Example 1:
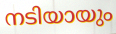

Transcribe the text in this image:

നടിയായും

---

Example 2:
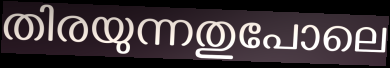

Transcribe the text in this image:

തിരയുന്നതുപോലെ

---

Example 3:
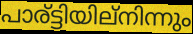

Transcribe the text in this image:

പാര്ട്ടിയില്നിന്നും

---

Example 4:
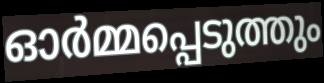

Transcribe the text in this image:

ഓർമ്മപ്പെടുത്തും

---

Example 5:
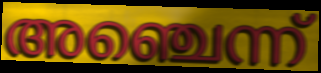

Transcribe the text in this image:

അഞ്ചെന്ന്